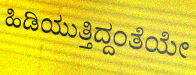
ಹಿಡಿಯುತ್ತಿದ್ದಂತೆಯೇ